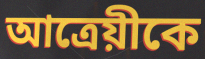
আত্রেয়ীকে